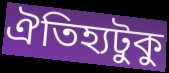
ঐতিহ্যটুকু